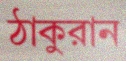
ঠাকুরান